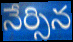
నేర్సిన